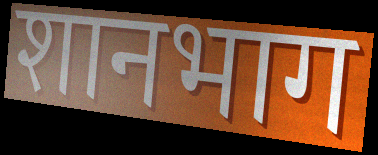
शानभाग